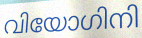
വിയോഗിനി